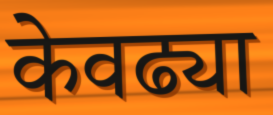
केवढ्या